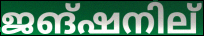
ജങ്ഷനില്